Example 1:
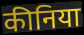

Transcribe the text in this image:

कीनिया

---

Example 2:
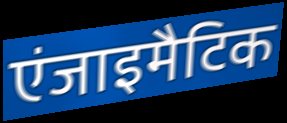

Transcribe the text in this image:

एंजाइमैटिक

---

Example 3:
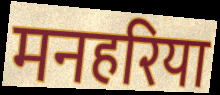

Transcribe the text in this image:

मनहरिया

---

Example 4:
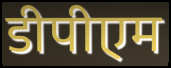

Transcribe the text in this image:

डीपीएम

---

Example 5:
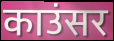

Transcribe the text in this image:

काउंसर